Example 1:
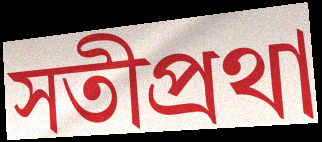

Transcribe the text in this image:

সতীপ্রথা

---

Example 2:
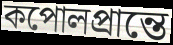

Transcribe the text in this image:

কপোলপ্রান্তে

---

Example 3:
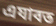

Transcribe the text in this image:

এযাবত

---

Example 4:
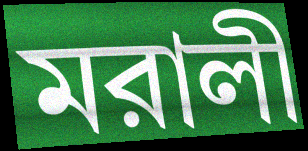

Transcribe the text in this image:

মরালী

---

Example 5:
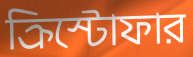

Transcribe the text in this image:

ক্রিস্টোফার